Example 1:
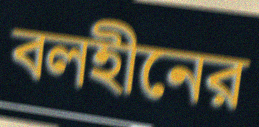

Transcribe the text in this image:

বলহীনের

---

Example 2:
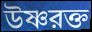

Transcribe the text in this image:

উষ্ণরক্ত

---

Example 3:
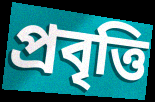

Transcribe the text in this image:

প্রবৃত্তি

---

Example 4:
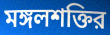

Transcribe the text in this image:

মঙ্গলশক্তির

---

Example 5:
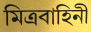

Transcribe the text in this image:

মিত্রবাহিনী